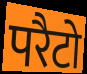
परैटो